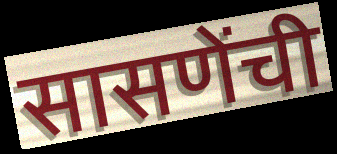
सासणेंची